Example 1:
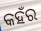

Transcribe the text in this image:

କହଁର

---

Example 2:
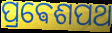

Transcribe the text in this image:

ପ୍ରଵେଶପଥ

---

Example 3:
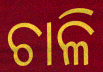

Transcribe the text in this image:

ଚାଳି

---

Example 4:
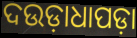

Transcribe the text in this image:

ଦଉଡ଼ାଧାପଡ଼ା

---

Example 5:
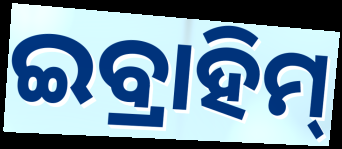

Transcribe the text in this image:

ଇବ୍ରାହିମ୍